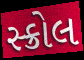
સ્ક્રોલ